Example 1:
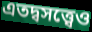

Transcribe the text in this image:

এতদ্বসত্ত্বেও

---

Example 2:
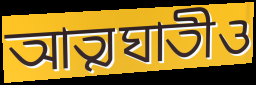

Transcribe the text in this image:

আত্মঘাতীও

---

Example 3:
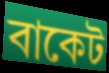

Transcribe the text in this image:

বাকেট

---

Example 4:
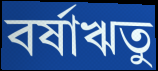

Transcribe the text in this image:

বর্ষাঋতু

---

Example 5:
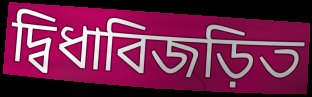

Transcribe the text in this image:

দ্বিধাবিজড়িত